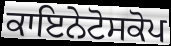
ਕਾਇਨੇਟੋਸਕੋਪ